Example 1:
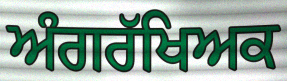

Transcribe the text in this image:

ਅੰਗਰੱਖਿਅਕ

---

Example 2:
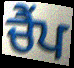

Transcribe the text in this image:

ਚੈਂਪ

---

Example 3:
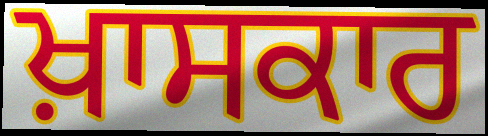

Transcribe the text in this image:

ਖ਼ਾਸਕਾਰ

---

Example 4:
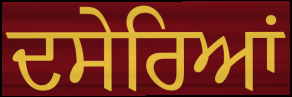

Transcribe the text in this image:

ਦਸੇਰਿਆਂ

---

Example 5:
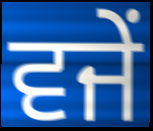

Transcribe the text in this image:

ਵਜੇਂ